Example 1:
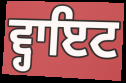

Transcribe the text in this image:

ਵ੍ਹਾਇਟ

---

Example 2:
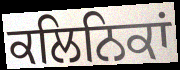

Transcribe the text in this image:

ਕਲਿਨਿਕਾਂ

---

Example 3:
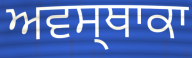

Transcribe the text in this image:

ਅਵਸ੍ਥਾਕਾ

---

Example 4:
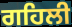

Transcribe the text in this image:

ਗਹਿਲੀ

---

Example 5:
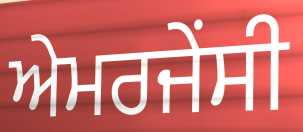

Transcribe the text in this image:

ਅੇਮਰਜੇਂਸੀ